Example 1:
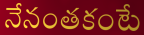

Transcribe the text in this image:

నేనంతకంటే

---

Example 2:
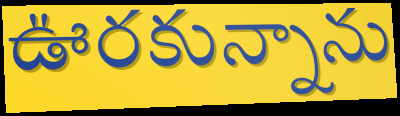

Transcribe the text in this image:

ఊరకున్నాను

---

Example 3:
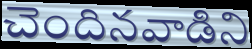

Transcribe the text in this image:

చెందినవాడిని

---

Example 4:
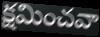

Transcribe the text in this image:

క్షమించవా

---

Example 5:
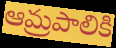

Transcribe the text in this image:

ఆమ్రపాలికి